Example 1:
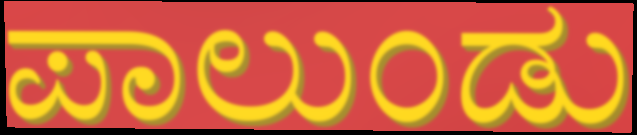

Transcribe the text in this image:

ಪಾಲುಂಡು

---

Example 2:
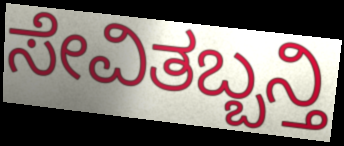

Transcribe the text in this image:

ಸೇವಿತಬ್ಬನ್ತಿ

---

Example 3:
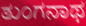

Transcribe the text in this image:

ತುಂಗನಾಥ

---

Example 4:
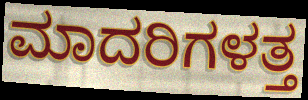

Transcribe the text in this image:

ಮಾದರಿಗಳತ್ತ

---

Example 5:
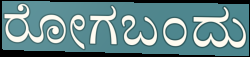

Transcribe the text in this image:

ರೋಗಬಂದು